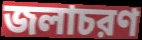
জলাচরণ